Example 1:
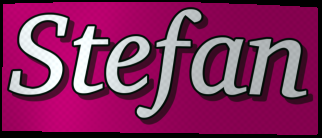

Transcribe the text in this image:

Stefan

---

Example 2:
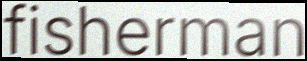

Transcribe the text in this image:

fisherman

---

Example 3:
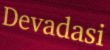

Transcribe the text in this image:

Devadasi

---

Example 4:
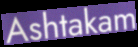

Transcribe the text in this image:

Ashtakam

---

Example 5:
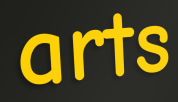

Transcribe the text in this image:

arts